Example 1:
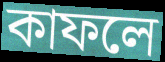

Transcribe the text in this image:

কাফলে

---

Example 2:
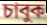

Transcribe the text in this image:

চাবুক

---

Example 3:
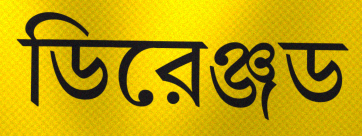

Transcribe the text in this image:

ডিরেঞ্জড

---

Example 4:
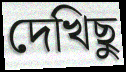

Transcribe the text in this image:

দেখিছু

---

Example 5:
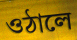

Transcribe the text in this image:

ওঠালে